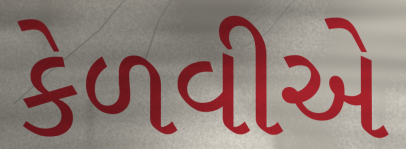
કેળવીએ